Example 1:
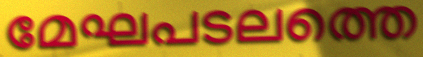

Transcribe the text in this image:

മേഘപടലത്തെ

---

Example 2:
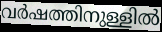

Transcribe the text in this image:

വർഷത്തിനുള്ളിൽ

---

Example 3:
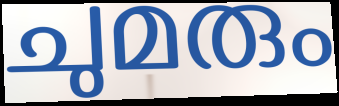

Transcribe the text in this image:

ചുമരും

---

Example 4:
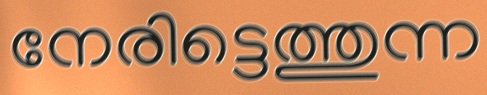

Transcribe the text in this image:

നേരിട്ടെത്തുന്ന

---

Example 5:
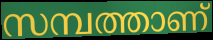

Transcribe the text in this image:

സമ്പത്താണ്